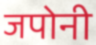
जपोनी